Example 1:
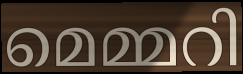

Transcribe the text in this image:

മെമ്മറി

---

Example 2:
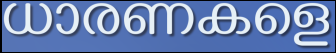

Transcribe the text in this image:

ധാരണകളെ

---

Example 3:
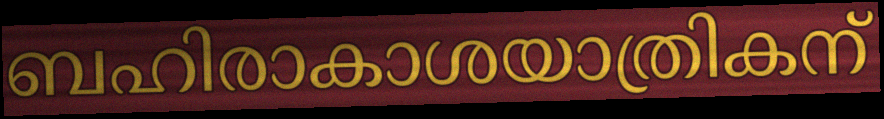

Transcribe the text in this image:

ബഹിരാകാശയാത്രികന്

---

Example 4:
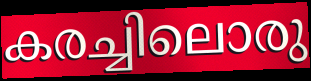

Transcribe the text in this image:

കരച്ചിലൊരു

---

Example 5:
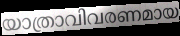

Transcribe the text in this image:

യാത്രാവിവരണമായ